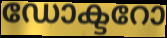
ഡോക്ടറോ